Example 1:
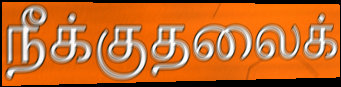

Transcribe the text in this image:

நீக்குதலைக்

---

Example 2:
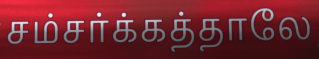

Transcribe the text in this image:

சம்சர்க்கத்தாலே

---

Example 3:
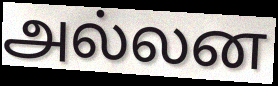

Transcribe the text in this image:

அல்லன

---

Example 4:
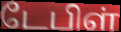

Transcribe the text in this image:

டேபிள்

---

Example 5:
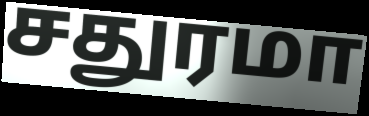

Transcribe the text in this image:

சதுரமா